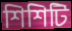
শিশিটি